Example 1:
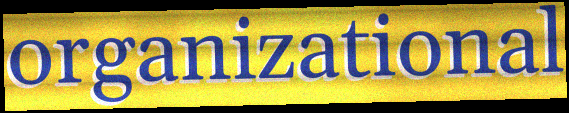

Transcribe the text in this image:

organizational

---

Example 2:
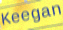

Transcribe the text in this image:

Keegan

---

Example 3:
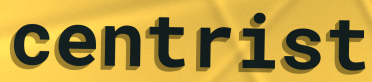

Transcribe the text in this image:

centrist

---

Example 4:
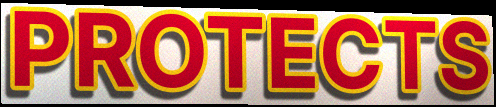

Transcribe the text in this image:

PROTECTS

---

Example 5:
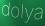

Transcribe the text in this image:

dolya